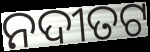
ନଦୀତଟ